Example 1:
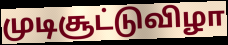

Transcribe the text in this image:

முடிசூட்டுவிழா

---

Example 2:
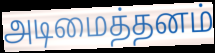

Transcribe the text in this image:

அடிமைத்தனம்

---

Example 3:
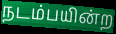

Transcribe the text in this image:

நடம்பயின்ற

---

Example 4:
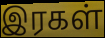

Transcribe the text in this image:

இரகள்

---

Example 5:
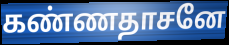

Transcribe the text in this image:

கண்ணதாசனே